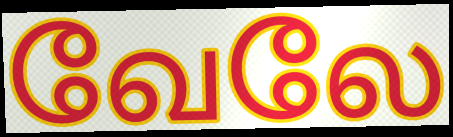
வேலே